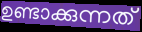
ഉണ്ടാക്കുന്നത്